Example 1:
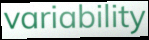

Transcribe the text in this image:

variability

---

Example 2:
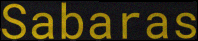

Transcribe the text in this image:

Sabaras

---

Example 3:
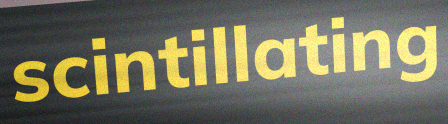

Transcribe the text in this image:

scintillating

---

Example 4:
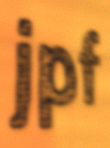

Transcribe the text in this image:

jpf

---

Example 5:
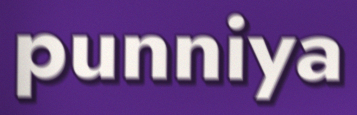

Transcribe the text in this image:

punniya